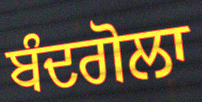
ਬੰਦਗੋਲਾ